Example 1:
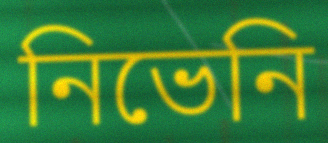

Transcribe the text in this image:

নিভেনি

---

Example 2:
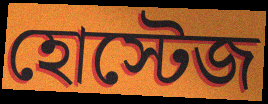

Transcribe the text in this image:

হোস্টেজ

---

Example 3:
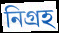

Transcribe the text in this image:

নিগ্রহ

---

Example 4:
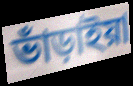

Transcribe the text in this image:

ভাঁড়াইয়া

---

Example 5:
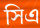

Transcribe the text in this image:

সিএ